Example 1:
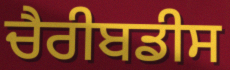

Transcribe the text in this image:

ਚੈਰੀਬਡੀਸ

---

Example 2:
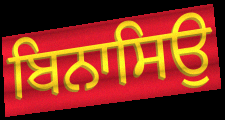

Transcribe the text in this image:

ਬਿਨਾਸਿਉ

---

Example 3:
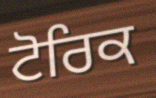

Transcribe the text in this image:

ਟੋਰਿਕ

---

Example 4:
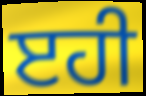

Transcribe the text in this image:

ੲਹੀ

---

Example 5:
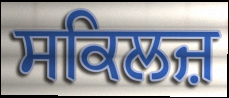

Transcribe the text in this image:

ਸਕਿਲਜ਼